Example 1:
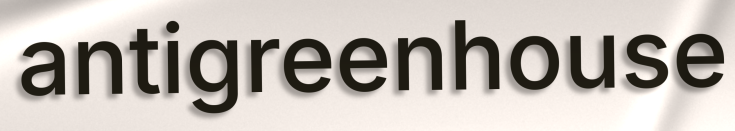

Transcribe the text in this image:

antigreenhouse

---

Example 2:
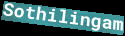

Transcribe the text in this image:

Sothilingam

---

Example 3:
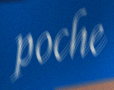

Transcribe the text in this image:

poche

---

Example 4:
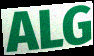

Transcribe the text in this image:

ALG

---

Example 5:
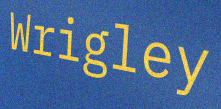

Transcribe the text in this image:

Wrigley